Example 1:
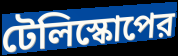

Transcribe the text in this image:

টেলিস্কোপের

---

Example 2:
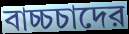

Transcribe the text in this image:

বাচ্চচাদের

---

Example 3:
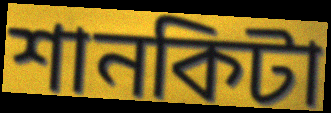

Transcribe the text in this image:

শানকিটা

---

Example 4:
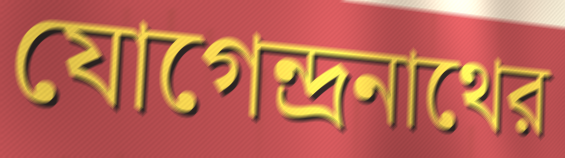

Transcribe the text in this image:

যোগেন্দ্রনাথের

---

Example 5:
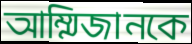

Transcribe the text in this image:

আম্মিজানকে